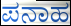
ಪನಾಹ